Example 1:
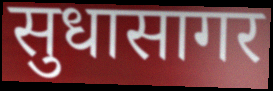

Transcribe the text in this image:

सुधासागर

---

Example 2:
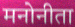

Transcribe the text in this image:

मनोनीता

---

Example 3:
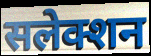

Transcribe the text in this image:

सलेक्शन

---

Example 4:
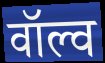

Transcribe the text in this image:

वॉल्व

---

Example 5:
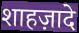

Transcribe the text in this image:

शाहज़ादे